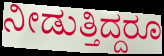
ನೀಡುತ್ತಿದ್ದರೂ